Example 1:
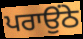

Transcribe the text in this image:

ਪਰਾਉਂਠੇ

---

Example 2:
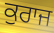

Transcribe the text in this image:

ਕੁਰਾਜ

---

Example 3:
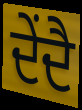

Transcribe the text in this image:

ਦੇਂਦੈ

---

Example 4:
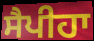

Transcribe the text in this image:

ਸੈਪੀਹਾ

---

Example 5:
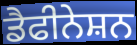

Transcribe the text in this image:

ਡੈਫੀਨੇਸ਼ਨ